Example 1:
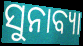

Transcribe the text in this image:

ସୁନାବ୍ୟା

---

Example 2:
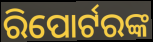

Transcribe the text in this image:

ରିପୋର୍ଟରଙ୍କ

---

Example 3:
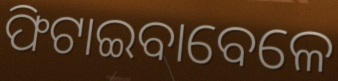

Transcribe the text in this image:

ଫିଟାଇବାବେଳେ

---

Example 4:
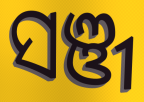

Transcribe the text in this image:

ସଞ୍ଜ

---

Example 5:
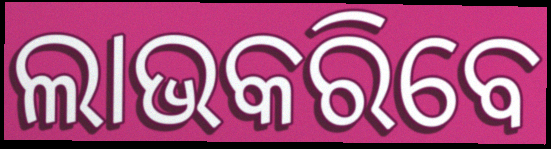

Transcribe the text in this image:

ଲାଭକରିବେ